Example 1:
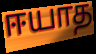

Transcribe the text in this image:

ஈயாத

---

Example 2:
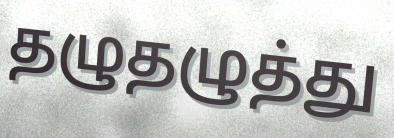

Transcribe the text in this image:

தழுதழுத்து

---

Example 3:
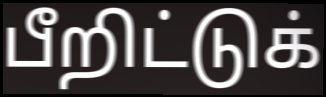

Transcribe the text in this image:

பீறிட்டுக்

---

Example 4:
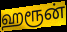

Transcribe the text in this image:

ஹரூன்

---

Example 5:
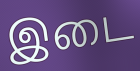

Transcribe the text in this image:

இடை